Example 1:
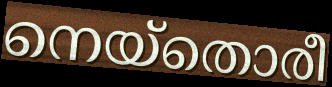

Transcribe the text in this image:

നെയ്തൊരീ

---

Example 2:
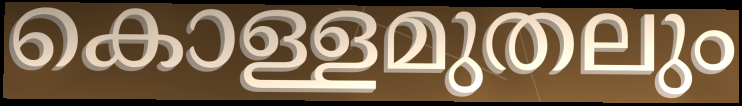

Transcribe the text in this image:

കൊള്ളമുതലും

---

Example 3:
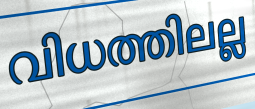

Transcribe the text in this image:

വിധത്തിലല്ല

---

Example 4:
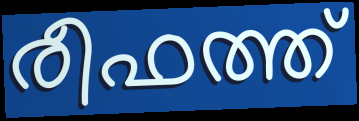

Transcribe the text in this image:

രീഫത്ത്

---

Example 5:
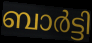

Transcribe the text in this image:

ബാർട്ടി